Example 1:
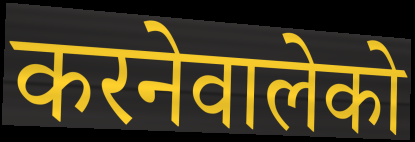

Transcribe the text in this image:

करनेवालेको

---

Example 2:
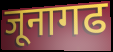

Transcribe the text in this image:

जूनागढ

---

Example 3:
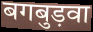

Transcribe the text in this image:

बगबुड़वा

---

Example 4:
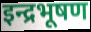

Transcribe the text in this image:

इन्द्रभूषण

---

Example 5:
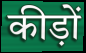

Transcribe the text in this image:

कीड़ों